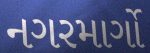
નગરમાર્ગો